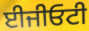
ਈਜੀਓਟੀ